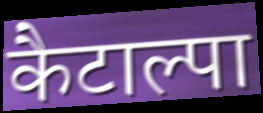
कैटाल्पा